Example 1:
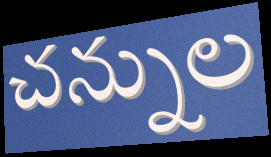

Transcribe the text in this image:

చన్నుల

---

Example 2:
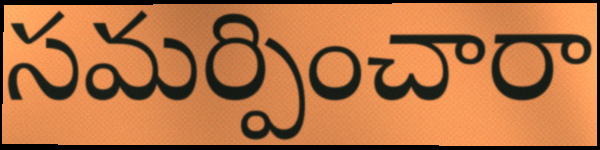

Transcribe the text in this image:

సమర్పించారా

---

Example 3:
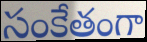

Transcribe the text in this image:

సంకేతంగా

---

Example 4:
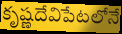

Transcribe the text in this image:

కృష్ణదేవిపేటలోనే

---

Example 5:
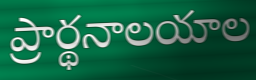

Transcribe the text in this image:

ప్రార్థనాలయాల